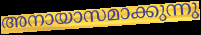
അനായാസമാക്കുന്നു